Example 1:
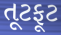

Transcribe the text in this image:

તૂટફૂટ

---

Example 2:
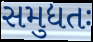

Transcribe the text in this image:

સમુદ્યતઃ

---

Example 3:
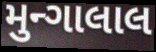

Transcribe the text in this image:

મુન્ગાલાલ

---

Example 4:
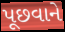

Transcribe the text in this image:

પૂછવાને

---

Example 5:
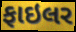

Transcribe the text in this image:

ફાઇલર